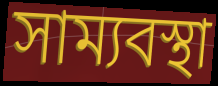
সাম্যবস্থা